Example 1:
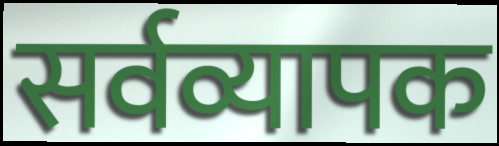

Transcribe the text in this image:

सर्वव्यापक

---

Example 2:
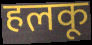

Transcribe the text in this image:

हलकू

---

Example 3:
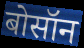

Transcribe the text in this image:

बोसॉन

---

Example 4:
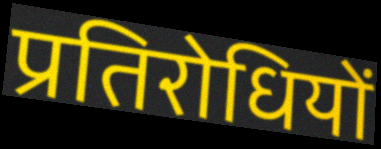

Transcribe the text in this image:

प्रतिरोधियों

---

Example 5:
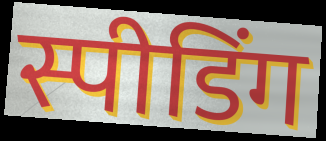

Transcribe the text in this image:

स्‍पीडिंग